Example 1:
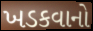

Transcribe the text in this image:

ખડકવાનો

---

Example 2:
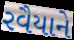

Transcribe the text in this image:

રવૈયાને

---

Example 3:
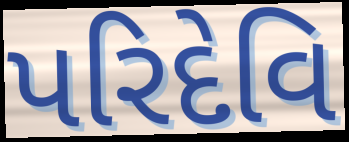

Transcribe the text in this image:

પરિદેવિ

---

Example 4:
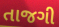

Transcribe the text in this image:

તાજગી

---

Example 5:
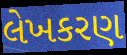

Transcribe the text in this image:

લેખકરણ